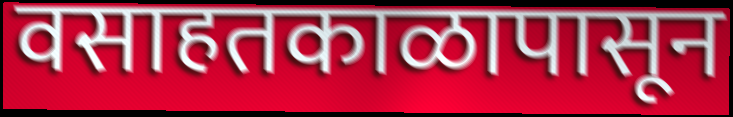
वसाहतकाळापासून